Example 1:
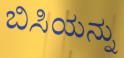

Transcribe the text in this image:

ಬಿಸಿಯನ್ನು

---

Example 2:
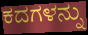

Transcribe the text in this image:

ಕದಗಳನ್ನು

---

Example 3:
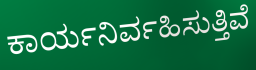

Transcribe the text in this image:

ಕಾರ್ಯನಿರ್ವಹಿಸುತ್ತಿವೆ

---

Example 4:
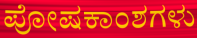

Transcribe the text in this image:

ಪೋಷಕಾಂಶಗಳು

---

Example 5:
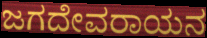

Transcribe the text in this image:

ಜಗದೇವರಾಯನ